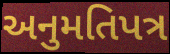
અનુમતિપત્ર